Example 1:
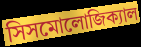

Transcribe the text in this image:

সিসমোলোজিক্যাল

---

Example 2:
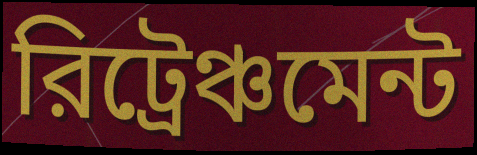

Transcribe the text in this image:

রিট্রেঞ্চমেন্ট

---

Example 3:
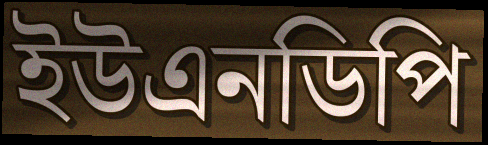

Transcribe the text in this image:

ইউএনডিপি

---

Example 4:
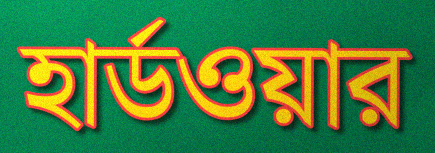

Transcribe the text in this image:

হার্ডওয়ার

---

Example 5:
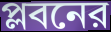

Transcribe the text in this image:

প্লবনের